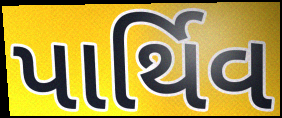
પાર્થિવ